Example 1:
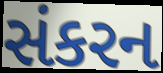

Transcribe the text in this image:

સંકરન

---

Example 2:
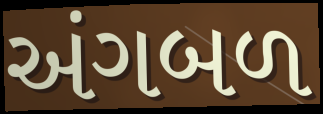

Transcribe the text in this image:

અંગબળ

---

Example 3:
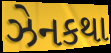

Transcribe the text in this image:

ઝેનકથા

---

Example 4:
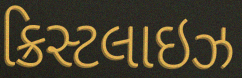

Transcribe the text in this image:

ક્રિસ્ટલાઇઝ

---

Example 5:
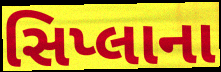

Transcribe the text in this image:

સિપ્લાના